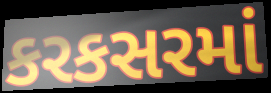
કરકસરમાં